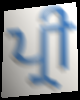
ਪ੍ਰੀ